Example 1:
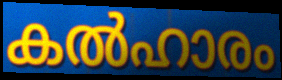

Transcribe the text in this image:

കൽഹാരം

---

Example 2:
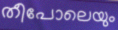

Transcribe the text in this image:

തീപോലെയും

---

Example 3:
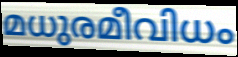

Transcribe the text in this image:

മധുരമീവിധം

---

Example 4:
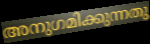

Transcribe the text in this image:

അനുഗമിക്കുന്നതു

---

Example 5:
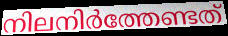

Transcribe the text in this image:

നിലനിർത്തേണ്ടത്